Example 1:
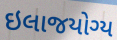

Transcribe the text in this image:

ઇલાજયોગ્ય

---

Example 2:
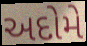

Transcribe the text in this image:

અદોમે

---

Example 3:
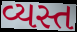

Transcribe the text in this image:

વ્યસ્ત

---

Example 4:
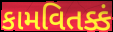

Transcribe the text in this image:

કામવિતક્કં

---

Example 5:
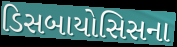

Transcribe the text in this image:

ડિસબાયોસિસના